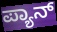
ಪ್ಯಾನ್